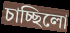
চাচ্ছিলো